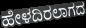
ಹೇಳದಿರಲಾಗದ